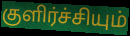
குளிர்ச்சியும்